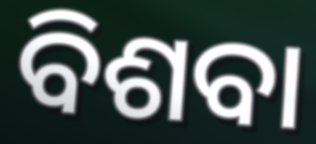
ବିଶବା